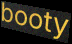
booty